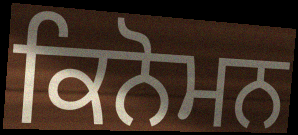
ਕਿਨੋਮਨ